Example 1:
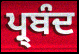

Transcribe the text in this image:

ਪ੍ਰ੍ਬੰਦ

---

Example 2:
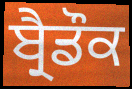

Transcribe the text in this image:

ਬ੍ਰੈਡੌਕ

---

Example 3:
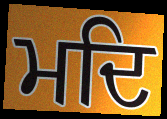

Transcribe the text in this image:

ਮਦਿ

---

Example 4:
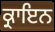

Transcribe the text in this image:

ਕ੍ਰਾਇਨ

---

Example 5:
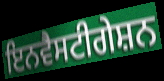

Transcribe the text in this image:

ਇਨਵੈਸਟੀਗੇਸ਼ਨ